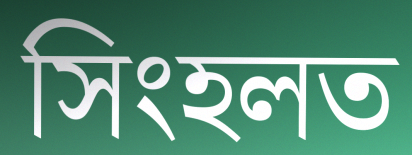
সিংহলত